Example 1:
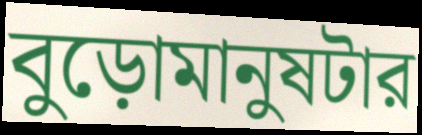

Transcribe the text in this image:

বুড়োমানুষটার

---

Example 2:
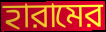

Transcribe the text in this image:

হারামের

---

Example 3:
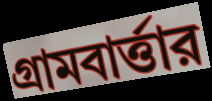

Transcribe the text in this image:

গ্রামবার্ত্তার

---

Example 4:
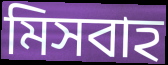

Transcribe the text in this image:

মিসবাহ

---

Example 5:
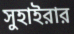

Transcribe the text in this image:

সুহাইরার